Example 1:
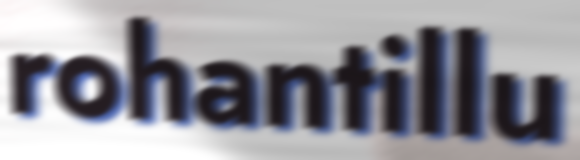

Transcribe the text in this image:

rohantillu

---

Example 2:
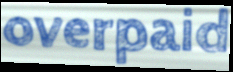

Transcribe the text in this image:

overpaid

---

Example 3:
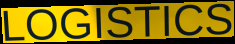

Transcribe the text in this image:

LOGISTICS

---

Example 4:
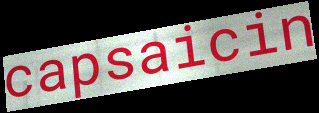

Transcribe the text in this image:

capsaicin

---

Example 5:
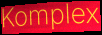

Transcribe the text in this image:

Komplex